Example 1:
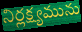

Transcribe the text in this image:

నిర్లక్ష్యమును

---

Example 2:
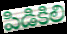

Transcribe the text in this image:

పిడికిలి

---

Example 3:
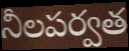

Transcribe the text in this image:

నీలపర్వత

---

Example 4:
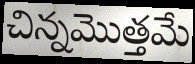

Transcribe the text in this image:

చిన్నమొత్తమే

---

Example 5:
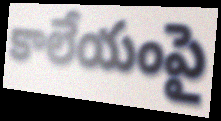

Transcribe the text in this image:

కాలేయంపై